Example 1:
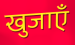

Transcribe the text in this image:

खुजाएँ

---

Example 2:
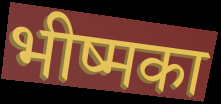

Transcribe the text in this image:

भीष्मका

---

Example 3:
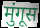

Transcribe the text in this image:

मुंगूस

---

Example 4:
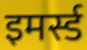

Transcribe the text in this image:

इमर्स्ड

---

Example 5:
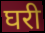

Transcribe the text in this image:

घरी